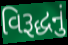
વિરૂદ્ધનું